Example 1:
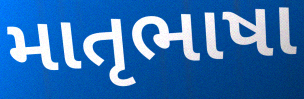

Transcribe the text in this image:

માતૃભાષા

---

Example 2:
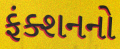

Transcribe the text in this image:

ફંક્શનનો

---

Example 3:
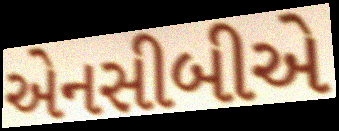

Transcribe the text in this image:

એનસીબીએ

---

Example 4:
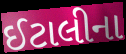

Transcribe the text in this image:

ઈટાલીના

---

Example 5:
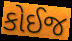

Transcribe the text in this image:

કોઈજ